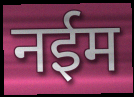
नईम